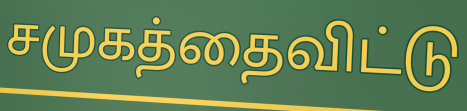
சமுகத்தைவிட்டு